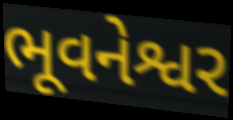
ભૂવનેશ્વર